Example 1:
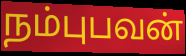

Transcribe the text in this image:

நம்புபவன்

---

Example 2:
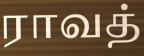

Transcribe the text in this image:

ராவத்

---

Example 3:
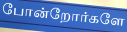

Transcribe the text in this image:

போன்றோர்களே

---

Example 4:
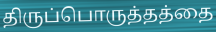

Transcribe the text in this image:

திருப்பொருத்தத்தை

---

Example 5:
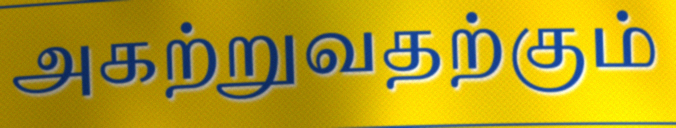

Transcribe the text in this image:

அகற்றுவதற்கும்